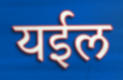
यईल